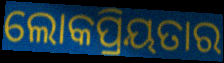
ଲୋକପ୍ରିୟତାର